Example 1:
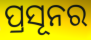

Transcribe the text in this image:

ପ୍ରସୂନର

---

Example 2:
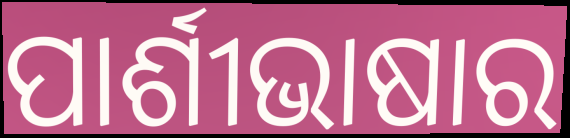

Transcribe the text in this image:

ପାର୍ଶୀଭାଷାର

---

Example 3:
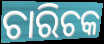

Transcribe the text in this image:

ଚାରିଚକ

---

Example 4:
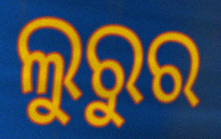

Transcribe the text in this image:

ଲୁରୁର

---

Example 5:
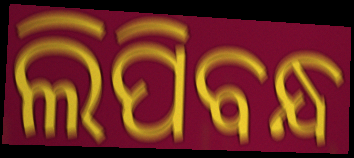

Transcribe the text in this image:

ଲିପିବନ୍ଧ